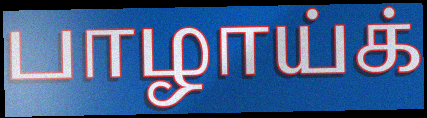
பாழாய்க்